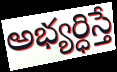
అభ్యర్ధిస్తే